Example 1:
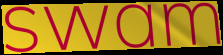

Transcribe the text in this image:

swam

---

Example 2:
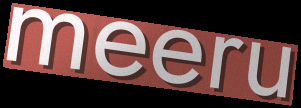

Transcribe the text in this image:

meeru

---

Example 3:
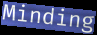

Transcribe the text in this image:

Minding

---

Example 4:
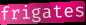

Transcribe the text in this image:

frigates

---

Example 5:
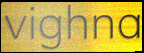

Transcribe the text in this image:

vighna